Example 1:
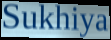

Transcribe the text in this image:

Sukhiya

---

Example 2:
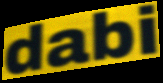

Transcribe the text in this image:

dabi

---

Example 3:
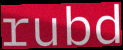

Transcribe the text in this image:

rubd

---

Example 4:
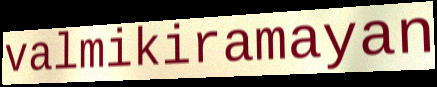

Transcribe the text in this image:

valmikiramayan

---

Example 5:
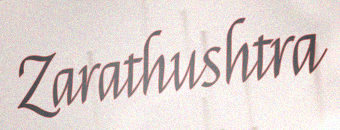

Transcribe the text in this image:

Zarathushtra